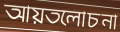
আয়তলোচনা